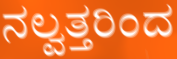
ನಲ್ವತ್ತರಿಂದ